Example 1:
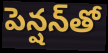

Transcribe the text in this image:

పెన్షన్‌తో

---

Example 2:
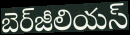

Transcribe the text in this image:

బెర్‌జీలియస్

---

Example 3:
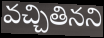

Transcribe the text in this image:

వచ్చితినని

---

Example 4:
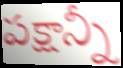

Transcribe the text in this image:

పక్షాన్నీ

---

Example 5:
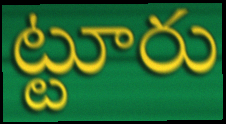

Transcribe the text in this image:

ట్టూరు